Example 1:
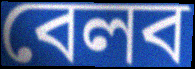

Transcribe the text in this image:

বেলব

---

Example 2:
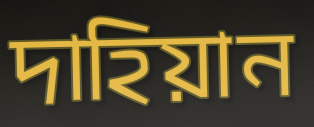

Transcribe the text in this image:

দাহিয়ান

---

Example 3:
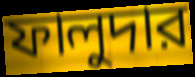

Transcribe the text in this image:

ফালুদার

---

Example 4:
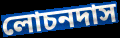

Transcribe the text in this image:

লোচনদাস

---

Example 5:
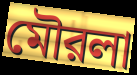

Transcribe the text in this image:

মৌরলা